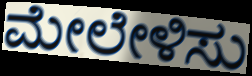
ಮೇಲೇಳಿಸು